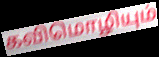
கவிமொழியும்